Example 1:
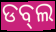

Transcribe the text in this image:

ଡବ୍‌ଲ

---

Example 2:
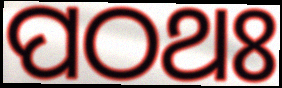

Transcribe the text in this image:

ପଠଥଃ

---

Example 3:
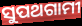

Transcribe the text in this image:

ସୁପଥଗାମୀ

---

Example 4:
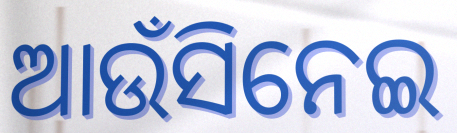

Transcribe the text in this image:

ଆଉଁସିନେଇ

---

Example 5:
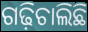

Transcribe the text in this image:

ଗଢ଼ିଚାଲିଛି